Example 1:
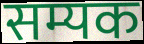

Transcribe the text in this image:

सम्‍यक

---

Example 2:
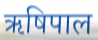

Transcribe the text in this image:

ऋषिपाल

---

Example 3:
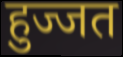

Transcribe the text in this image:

हुज्जत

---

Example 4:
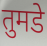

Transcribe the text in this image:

तुमडे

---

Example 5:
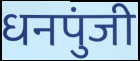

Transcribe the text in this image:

धनपुंजी